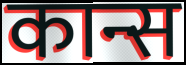
कान्‍स